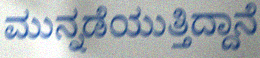
ಮುನ್ನಡೆಯುತ್ತಿದ್ದಾನೆ